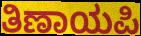
ತಿಣಾಯಪಿ